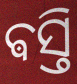
ଵସ୍ତି